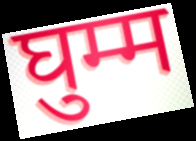
घुम्म